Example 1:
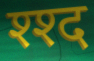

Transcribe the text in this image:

श्श्द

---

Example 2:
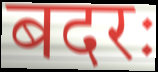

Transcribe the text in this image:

बदरः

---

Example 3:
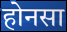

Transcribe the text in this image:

होनसा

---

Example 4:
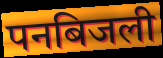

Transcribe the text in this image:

पनबिजली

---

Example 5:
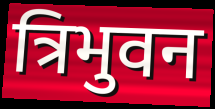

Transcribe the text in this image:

त्रिभुवन